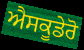
ਐਸਕੂਡੇਰੋ